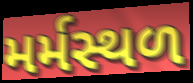
મર્મસ્થળ